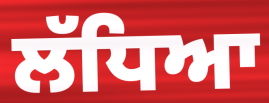
ਲੱਧਿਆ